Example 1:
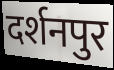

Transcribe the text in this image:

दर्शनपुर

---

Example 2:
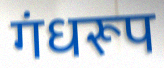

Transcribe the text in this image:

गंधरूप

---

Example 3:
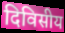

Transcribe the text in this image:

दिविसीय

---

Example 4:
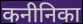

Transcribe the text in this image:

कनीनिका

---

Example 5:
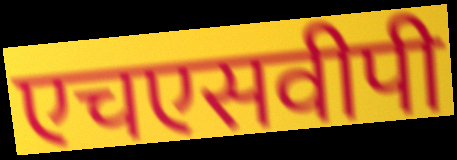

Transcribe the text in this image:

एचएसवीपी